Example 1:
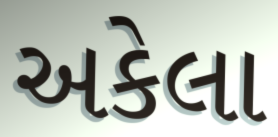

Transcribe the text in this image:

અકેલા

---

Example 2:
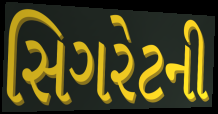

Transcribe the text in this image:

સિગરેટની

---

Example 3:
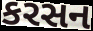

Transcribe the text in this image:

કરસન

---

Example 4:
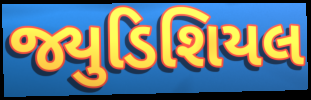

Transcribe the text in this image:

જ્યુડિશિયલ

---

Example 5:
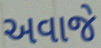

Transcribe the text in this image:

અવાજે